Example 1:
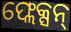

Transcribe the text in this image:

ଫ୍ଲେକ୍ସନ୍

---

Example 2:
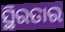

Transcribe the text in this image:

ସ୍ଥିରତାର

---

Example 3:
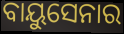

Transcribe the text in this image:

ବାୟୁସେନାର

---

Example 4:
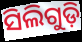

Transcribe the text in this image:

ସିଲିଗୁଡ଼ି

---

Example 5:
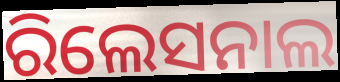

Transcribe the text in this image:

ରିଲେସନାଲ